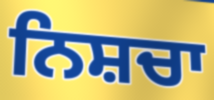
ਨਿਸ਼ਚਾ